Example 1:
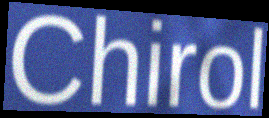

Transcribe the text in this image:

Chirol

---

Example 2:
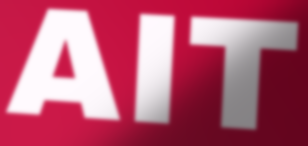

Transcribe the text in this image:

AIT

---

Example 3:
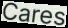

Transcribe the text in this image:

Cares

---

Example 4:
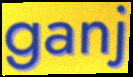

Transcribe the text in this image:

ganj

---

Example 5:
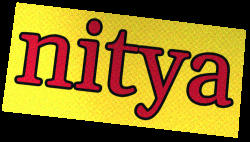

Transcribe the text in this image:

nitya